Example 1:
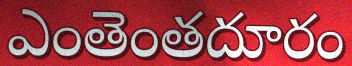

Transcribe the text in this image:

ఎంతెంతదూరం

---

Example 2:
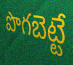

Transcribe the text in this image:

పొగబెట్టే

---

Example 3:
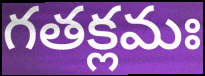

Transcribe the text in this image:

గతక్లమః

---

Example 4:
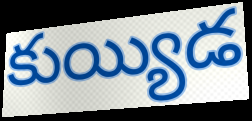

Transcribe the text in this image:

కుయ్యిడ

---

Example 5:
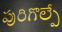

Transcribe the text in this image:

పురిగొల్పే